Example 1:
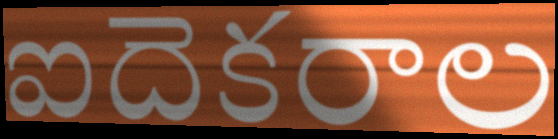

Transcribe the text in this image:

ఐదెకరాల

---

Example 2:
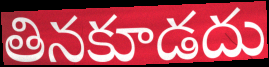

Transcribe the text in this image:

తినకూడదు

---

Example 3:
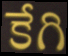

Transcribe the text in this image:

కేగి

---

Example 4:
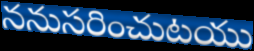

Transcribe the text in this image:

ననుసరించుటయు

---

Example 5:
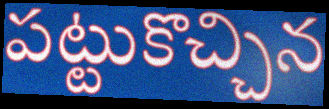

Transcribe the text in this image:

పట్టుకొచ్చిన